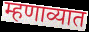
म्हणाव्यात